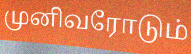
முனிவரோடும்